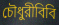
চৌধুরীবিবি